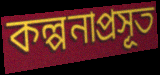
কল্পনাপ্ৰসূত